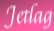
Jetlag